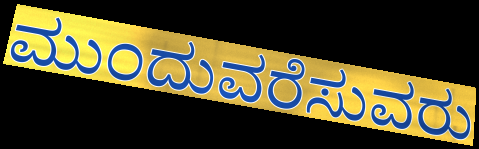
ಮುಂದುವರೆಸುವರು